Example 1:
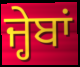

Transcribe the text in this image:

ਜ੍ਹੇਬਾਂ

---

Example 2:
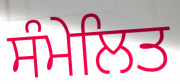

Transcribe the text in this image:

ਸੰਮੇਲਿਤ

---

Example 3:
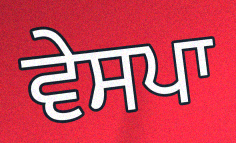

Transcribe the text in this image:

ਵੇਸਪਾ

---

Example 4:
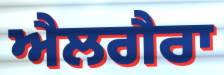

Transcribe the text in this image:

ਐਲਗੈਰਾ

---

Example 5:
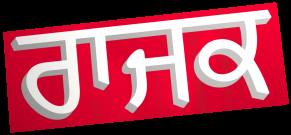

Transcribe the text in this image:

ਰਾਜਕ